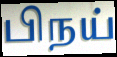
பிநய்